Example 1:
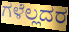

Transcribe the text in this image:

ಗಳೆಲ್ಲದರ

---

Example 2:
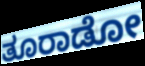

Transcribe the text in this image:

ತೂರಾಡೋ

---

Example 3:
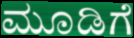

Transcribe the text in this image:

ಮೂಡಿಗೆ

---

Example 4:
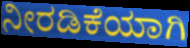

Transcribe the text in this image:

ನೀರಡಿಕೆಯಾಗಿ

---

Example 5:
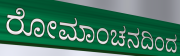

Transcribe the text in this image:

ರೋಮಾಂಚನದಿಂದ